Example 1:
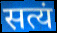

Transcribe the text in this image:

सत्यं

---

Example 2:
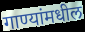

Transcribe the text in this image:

गाण्यांमधील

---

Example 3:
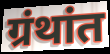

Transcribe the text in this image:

ग्रंथांत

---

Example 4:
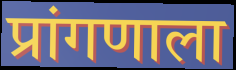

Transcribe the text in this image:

प्रांगणाला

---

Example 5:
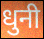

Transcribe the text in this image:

धुनी